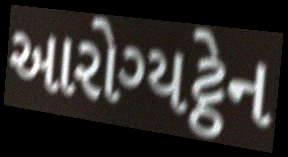
આરોગ્યટ્ઠેન